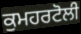
ਕੁਮਹਰਟੋਲੀ